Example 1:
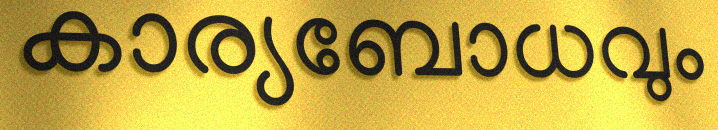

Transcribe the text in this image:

കാര്യബോധവും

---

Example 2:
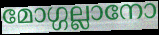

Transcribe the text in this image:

മോഗ്ഗല്ലാനോ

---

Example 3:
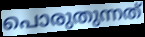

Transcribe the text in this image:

പൊരുതുന്നത്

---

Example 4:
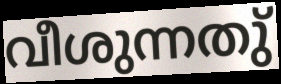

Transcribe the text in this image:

വീശുന്നതു്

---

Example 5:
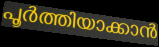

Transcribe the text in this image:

പൂർത്തിയാക്കാൻ